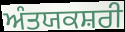
ਅੰਤਯਕਸ਼ਰੀ